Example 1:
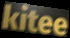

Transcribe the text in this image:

kitee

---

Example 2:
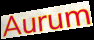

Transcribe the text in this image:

Aurum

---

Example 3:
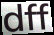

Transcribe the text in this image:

dff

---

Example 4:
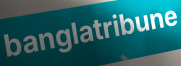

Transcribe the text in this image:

banglatribune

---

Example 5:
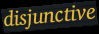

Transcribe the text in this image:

disjunctive